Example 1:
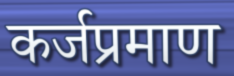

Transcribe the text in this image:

कर्जप्रमाण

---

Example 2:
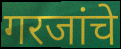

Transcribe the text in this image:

गरजांचे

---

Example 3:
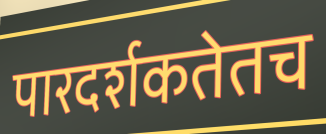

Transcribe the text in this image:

पारदर्शकतेतच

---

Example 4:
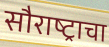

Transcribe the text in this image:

सौराष्ट्राचा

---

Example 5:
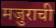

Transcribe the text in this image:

मजुराची